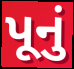
પૂનું